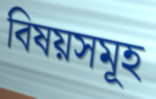
বিষয়সমূহ